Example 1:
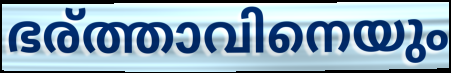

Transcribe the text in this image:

ഭര്ത്താവിനെയും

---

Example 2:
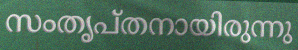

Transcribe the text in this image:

സംതൃപ്തനായിരുന്നു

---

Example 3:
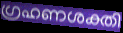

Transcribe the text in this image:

ഗ്രഹണശക്തി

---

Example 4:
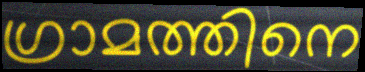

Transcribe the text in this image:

ഗ്രാമത്തിനെ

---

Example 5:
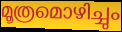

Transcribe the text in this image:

മൂത്രമൊഴിച്ചും